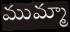
ముమ్మా